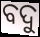
ବଦୁ